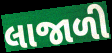
લાજાળી